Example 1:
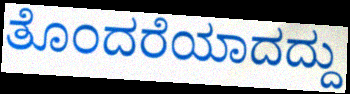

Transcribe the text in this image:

ತೊಂದರೆಯಾದದ್ದು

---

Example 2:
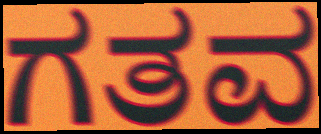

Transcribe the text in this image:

ಗತವ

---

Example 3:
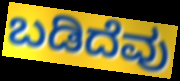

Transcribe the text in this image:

ಬಡಿದೆವು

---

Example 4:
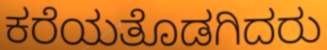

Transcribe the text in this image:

ಕರೆಯತೊಡಗಿದರು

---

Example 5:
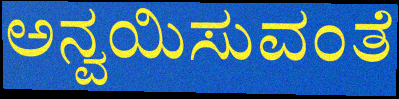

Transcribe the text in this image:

ಅನ್ವಯಿಸುವಂತೆ